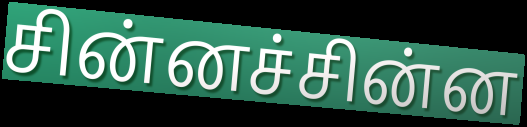
சின்னச்சின்ன